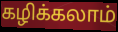
கழிக்கலாம்